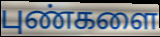
புண்களை